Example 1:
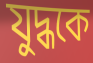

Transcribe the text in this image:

যুদ্ধকে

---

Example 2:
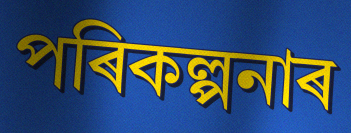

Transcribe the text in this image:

পৰিকল্পনাৰ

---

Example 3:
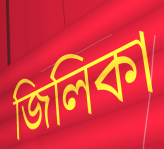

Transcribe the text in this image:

জিলিকা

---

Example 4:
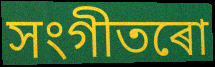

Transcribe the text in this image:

সংগীতৰো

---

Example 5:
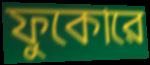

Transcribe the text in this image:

ফুকোৱে